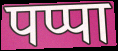
पप्‍पा